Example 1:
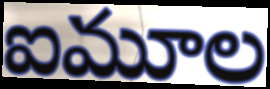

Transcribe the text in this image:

ఐమూల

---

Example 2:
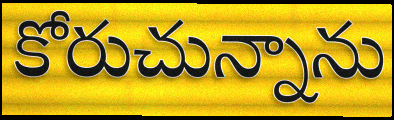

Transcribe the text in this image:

కోరుచున్నాను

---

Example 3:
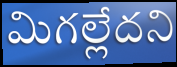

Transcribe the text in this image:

మిగల్లేదని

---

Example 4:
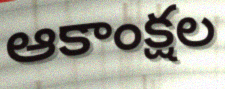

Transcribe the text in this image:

ఆకాంక్షల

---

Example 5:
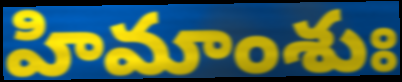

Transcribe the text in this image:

హిమాంశుః